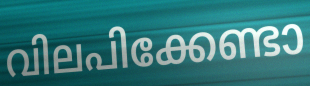
വിലപിക്കേണ്ടാ